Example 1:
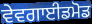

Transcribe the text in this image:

ਵੇਵਗਾਈਡਮੋਡ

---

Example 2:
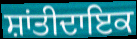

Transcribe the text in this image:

ਸ਼ਾਂਤੀਦਾਇਕ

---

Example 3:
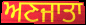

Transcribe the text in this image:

ਅਣਜਾਤਾ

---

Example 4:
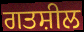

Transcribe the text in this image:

ਗਤਸ਼ੀਲ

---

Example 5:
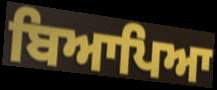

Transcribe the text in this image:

ਬਿਆਪਿਆ